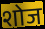
शोज